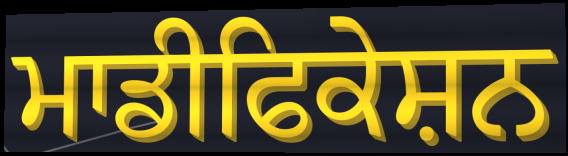
ਮਾਡੀਫਿਕੇਸ਼ਨ